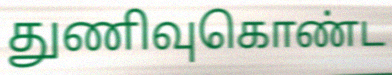
துணிவுகொண்ட